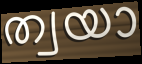
ത്വയാ